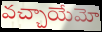
వచ్చాయేమో